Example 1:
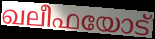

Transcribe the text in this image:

ഖലീഫയോട്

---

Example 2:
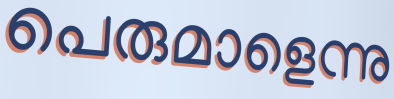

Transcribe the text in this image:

പെരുമാളെന്നു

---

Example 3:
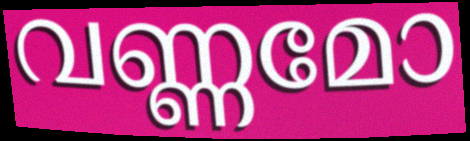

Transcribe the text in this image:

വണ്ണമോ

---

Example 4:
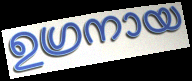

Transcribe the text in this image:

ഉഗ്രനായ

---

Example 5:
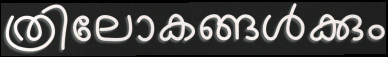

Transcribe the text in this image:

ത്രിലോകങ്ങൾക്കും